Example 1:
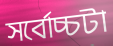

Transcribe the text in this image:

সর্বোচ্চটা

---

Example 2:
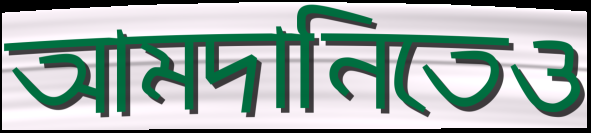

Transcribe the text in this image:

আমদানিতেও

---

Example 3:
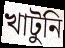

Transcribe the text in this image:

খাটুনি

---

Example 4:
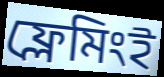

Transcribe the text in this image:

ফ্লেমিংই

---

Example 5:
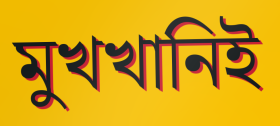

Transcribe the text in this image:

মুখখানিই